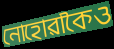
নোহোৱাকৈও